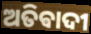
ଅତିଵାଦୀ